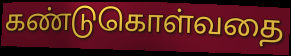
கண்டுகொள்வதை